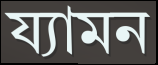
য্যামন